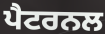
ਪੈਟਰਨਲ